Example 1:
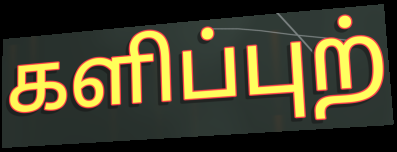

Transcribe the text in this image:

களிப்புற்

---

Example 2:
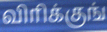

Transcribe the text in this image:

விரிக்குங்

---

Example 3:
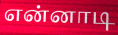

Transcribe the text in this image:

என்னாடி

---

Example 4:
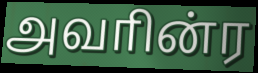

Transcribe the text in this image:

அவரின்ர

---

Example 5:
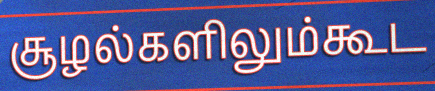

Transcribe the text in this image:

சூழல்களிலும்கூட